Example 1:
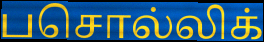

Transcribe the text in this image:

பசொல்லிக்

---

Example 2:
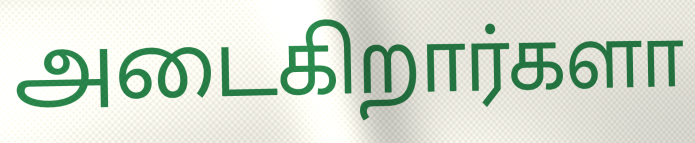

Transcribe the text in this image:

அடைகிறார்களா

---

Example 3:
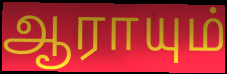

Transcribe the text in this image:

ஆராயும்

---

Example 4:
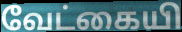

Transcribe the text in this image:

வேட்கையி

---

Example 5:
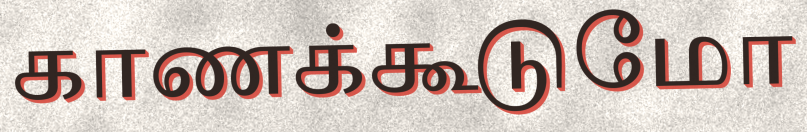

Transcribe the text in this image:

காணக்கூடுமோ